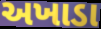
અખાડા